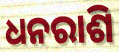
ଧନରାଶି